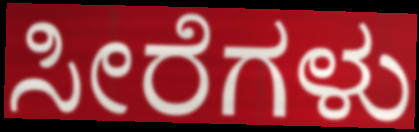
ಸೀರೆಗಳು